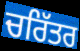
ਚਰਿੱਤਰ